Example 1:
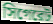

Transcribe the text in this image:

সিগেরেট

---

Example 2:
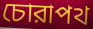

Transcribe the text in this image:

চোরাপথ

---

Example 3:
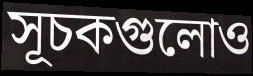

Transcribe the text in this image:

সূচকগুলোও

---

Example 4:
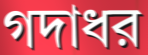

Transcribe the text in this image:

গদাধর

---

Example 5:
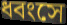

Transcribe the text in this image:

ধবংসে